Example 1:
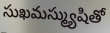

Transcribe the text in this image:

సుఖమస్మ్యుషితో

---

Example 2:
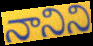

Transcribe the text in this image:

నానిని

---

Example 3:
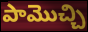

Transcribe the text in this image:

పామొచ్చి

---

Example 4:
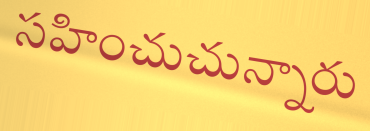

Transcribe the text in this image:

సహించుచున్నారు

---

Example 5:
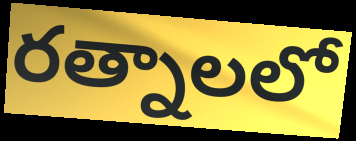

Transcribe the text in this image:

రత్నాలలో